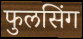
फुलसिंग